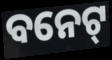
ବନେଟ୍